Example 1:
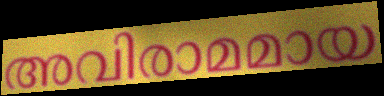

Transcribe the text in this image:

അവിരാമമായ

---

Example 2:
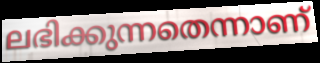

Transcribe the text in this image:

ലഭിക്കുന്നതെന്നാണ്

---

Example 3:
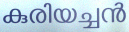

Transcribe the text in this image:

കുരിയച്ചൻ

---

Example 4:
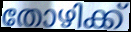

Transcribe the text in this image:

തോഴിക്ക്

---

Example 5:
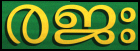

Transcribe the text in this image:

രജഃ